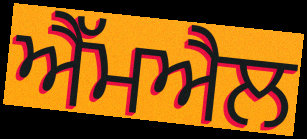
ਐੱਮਐਲ